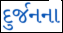
દુર્જનના